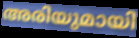
അരിയുമായി